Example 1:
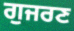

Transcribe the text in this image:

ਗੁਜਰਣ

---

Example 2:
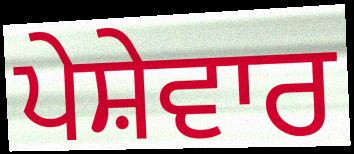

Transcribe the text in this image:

ਪੇਸ਼ੇਵਾਰ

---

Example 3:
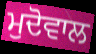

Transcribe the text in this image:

ਮੁਦੋਵਾਲ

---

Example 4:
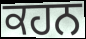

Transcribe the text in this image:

ਕਹਨ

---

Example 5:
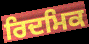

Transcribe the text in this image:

ਰਿਦਮਿਕ